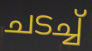
ചടച്ച്